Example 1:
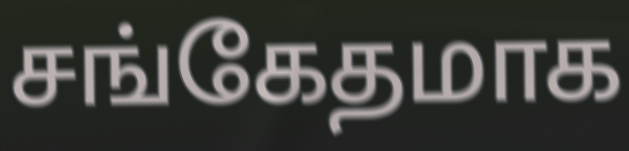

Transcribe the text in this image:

சங்கேதமாக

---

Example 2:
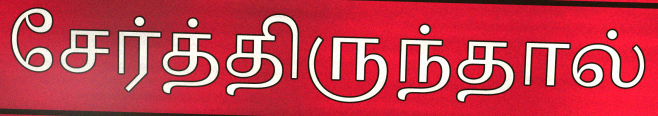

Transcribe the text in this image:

சேர்த்திருந்தால்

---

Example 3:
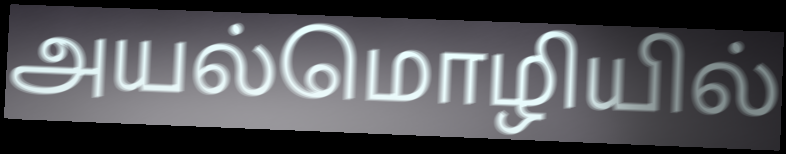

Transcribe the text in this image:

அயல்மொழியில்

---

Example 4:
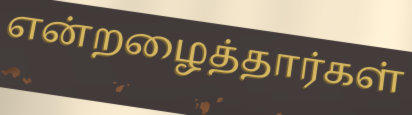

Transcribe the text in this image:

என்றழைத்தார்கள்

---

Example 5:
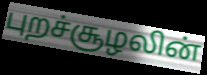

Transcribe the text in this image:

புறச்சூழலின்